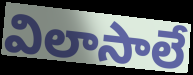
విలాసాలే